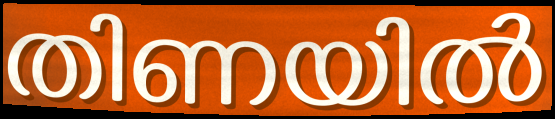
തിണയിൽ